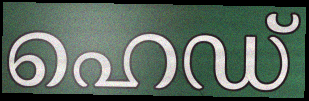
ഹെഡ്